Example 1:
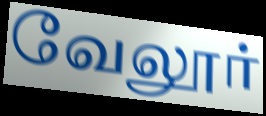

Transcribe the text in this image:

வேலூர்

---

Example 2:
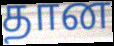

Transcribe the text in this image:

தான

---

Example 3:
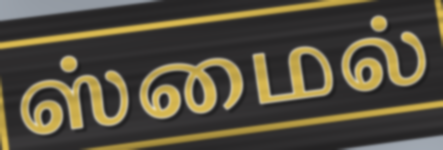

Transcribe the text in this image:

ஸ்மைல்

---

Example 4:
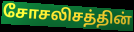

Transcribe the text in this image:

சோசலிசத்தின்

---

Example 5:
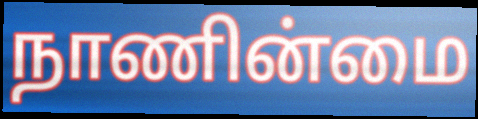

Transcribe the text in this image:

நாணின்மை